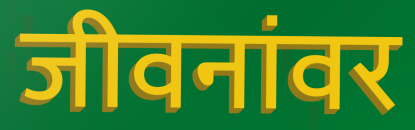
जीवनांवर